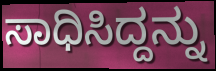
ಸಾಧಿಸಿದ್ದನ್ನು